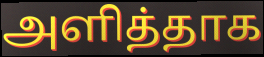
அளித்தாக